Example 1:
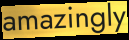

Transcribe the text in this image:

amazingly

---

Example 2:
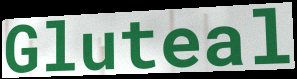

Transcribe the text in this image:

Gluteal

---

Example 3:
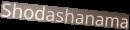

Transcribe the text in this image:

Shodashanama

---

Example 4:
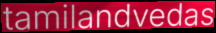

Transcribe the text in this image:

tamilandvedas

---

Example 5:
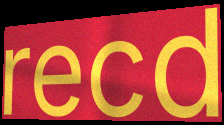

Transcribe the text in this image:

recd